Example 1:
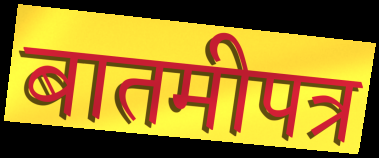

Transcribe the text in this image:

बातमीपत्र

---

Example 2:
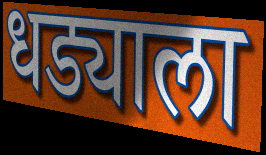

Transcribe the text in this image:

धड्याला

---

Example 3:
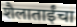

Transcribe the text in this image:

शैलाताईंचा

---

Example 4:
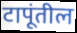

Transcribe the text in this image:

टापूंतील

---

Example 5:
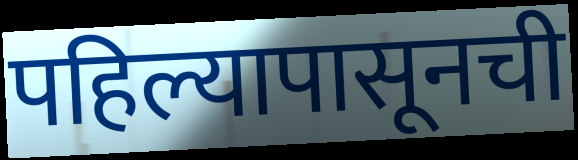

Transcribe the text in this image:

पहिल्यापासूनची